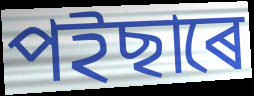
পইছাৰে